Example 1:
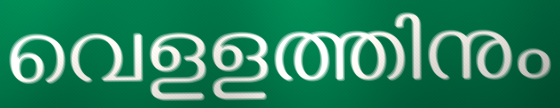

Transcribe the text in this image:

വെളളത്തിനും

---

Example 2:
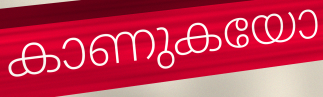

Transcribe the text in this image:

കാണുകയോ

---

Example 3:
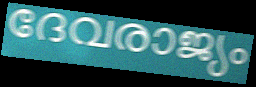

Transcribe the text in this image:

ദേവരാജ്യം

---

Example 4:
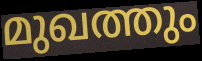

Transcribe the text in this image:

മുഖത്തും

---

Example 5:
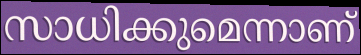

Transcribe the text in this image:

സാധിക്കുമെന്നാണ്